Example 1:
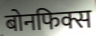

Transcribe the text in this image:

बोनफिक्स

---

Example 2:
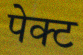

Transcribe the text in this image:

पेक्ट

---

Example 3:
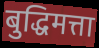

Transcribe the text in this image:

बुद्धिमत्ता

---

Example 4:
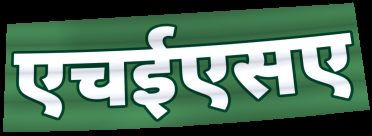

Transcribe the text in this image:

एचईएसए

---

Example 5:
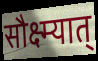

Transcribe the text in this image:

सौक्ष्म्यात्